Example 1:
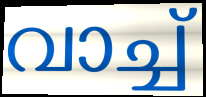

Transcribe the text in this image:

വാച്ച്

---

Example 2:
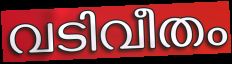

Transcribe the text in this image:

വടിവീതം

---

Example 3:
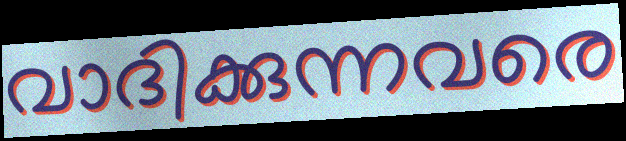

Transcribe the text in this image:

വാദിക്കുന്നവരെ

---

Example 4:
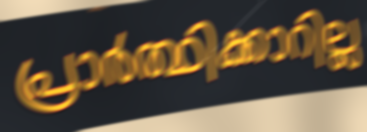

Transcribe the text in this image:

പ്രാർത്ഥിക്കാറില്ല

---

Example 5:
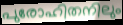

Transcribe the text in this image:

പുരോഹിതനിലും